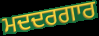
ਮਦਦਰਗਾਰ